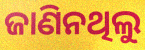
ଜାଣିନଥିଲୁ